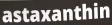
astaxanthin